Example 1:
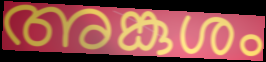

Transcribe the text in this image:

അങ്കുശം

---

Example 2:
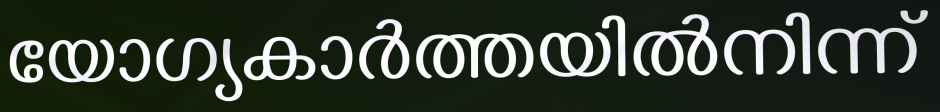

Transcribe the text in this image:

യോഗ്യകാർത്തയിൽനിന്ന്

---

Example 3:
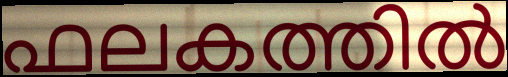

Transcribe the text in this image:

ഫലകത്തിൽ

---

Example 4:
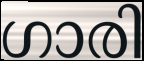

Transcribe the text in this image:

ഗാരി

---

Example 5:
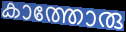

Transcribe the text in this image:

കാത്തോരു